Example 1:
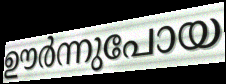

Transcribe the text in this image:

ഊർന്നുപോയ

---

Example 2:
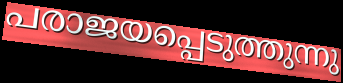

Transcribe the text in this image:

പരാജയപ്പെടുത്തുന്നു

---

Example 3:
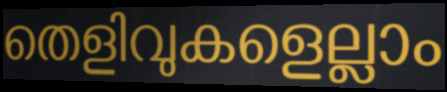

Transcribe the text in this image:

തെളിവുകളെല്ലാം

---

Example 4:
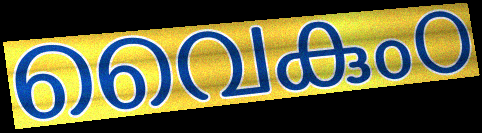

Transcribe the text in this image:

വൈകുംഠ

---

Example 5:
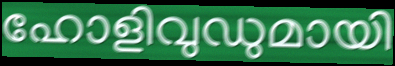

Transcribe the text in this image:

ഹോളിവുഡുമായി